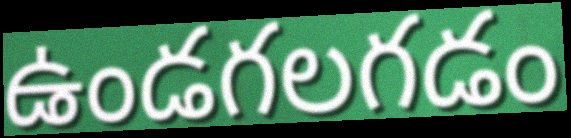
ఉండగలగడం